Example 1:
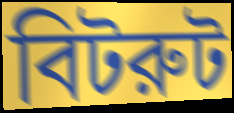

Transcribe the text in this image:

বিটরুট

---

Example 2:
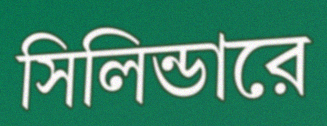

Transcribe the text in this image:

সিলিন্ডারে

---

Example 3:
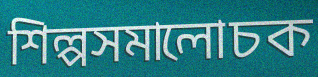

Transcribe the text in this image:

শিল্পসমালোচক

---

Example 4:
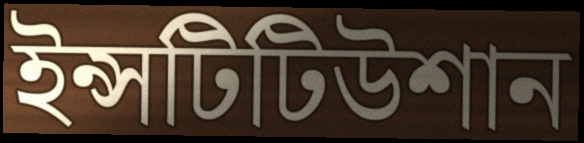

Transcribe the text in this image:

ইন্সটিটিউশান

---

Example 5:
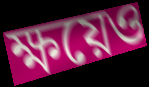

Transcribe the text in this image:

ক্ষয়েও